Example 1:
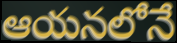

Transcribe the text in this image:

ఆయనలోనే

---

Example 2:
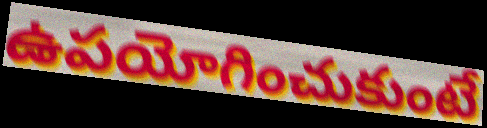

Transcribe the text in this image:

ఉపయోగించుకుంటే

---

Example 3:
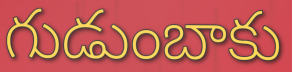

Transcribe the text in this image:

గుడుంబాకు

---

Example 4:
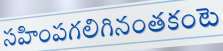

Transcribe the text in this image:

సహింపగలిగినంతకంటె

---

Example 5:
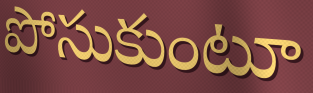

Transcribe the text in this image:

పోసుకుంటూ